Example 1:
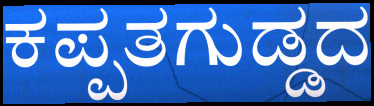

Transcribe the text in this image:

ಕಪ್ಪತಗುಡ್ಡದ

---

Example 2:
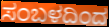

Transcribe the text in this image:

ಸಂಬಳದಿಂದ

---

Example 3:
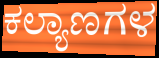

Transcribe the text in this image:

ಕಲ್ಯಾಣಗಳ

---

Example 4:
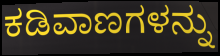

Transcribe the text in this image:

ಕಡಿವಾಣಗಳನ್ನು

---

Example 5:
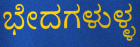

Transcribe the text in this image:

ಭೇದಗಳುಳ್ಳ